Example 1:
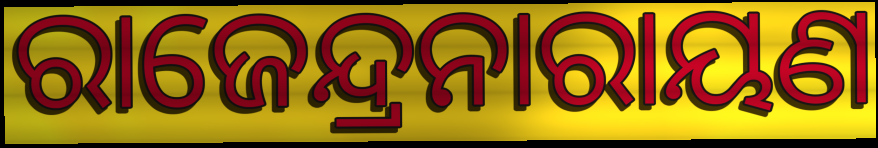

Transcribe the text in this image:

ରାଜେନ୍ଦ୍ରନାରାୟଣ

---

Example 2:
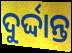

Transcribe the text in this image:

ଦୁର୍ଦ୍ଦାନ୍ତ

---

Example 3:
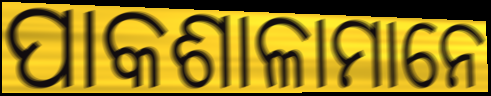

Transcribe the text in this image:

ପାକଶାଳାମାନେ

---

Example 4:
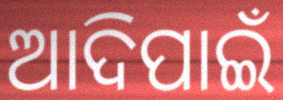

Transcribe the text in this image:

ଆଦିପାଇଁ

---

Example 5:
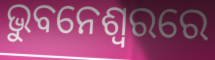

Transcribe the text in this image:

ଭୁବନେଶ୍ୱରରେ